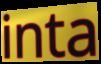
inta